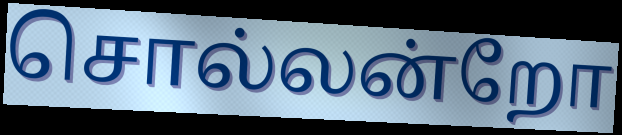
சொல்லன்றோ